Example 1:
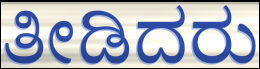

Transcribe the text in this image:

ತೀಡಿದರು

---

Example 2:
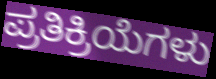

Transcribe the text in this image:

ಪ್ರತಿಕ್ರಿಯೆಗಳು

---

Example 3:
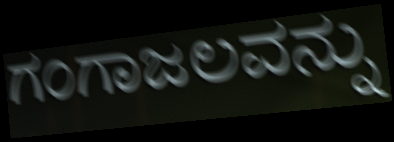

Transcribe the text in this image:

ಗಂಗಾಜಲವನ್ನು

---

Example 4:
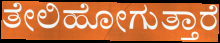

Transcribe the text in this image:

ತೇಲಿಹೋಗುತ್ತಾರೆ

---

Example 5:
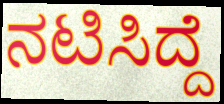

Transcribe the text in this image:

ನಟಿಸಿದ್ದೆ